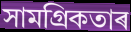
সামগ্ৰিকতাৰ